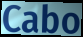
Cabo